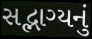
સદ્ભાગ્યનું